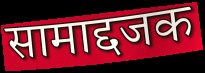
सामाद्दजक